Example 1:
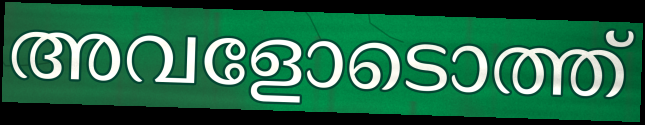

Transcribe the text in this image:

അവളോടൊത്ത്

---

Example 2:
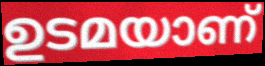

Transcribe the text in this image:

ഉടമയാണ്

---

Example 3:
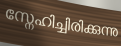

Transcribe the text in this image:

സ്നേഹിച്ചിരിക്കുന്നു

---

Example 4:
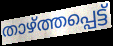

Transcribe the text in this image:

താഴ്ത്തപ്പെട്ട്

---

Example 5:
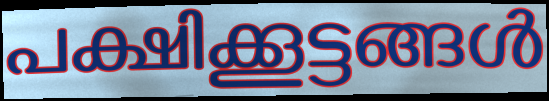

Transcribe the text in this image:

പക്ഷിക്കൂട്ടങ്ങൾ